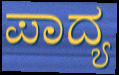
ಪಾದ್ಯ